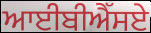
ਆਈਬੀਐੱਸਏ